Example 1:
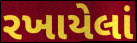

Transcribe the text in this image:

રખાયેલાં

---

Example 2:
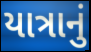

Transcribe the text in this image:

યાત્રાનું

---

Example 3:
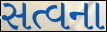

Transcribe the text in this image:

સત્વના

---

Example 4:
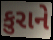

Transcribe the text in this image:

કુરાને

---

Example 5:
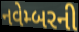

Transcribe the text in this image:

નવેમ્બરની